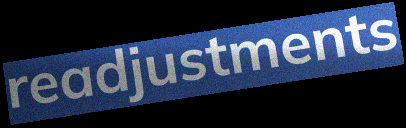
readjustments